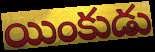
యింకుడు